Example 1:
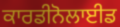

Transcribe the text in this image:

ਕਾਰਡੀਨੋਲਾਈਡ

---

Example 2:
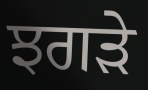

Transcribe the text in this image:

ਝਗਡ਼ੇ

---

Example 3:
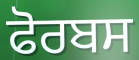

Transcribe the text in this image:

ਫੋਰਬਸ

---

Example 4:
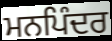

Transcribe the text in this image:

ਮਨਪਿੰਦਰ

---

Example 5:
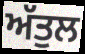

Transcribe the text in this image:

ਅੱਤੁਲ